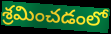
శ్రమించడంలో